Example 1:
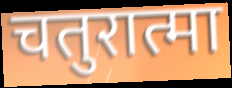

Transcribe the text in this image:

चतुरात्मा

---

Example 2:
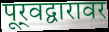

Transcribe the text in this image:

पूर्वद्वारावर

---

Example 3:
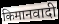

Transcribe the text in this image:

किमानवादी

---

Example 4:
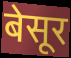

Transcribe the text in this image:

बेसूर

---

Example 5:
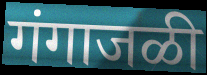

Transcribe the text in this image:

गंगाजळी